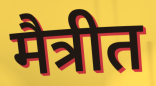
मैत्रीत